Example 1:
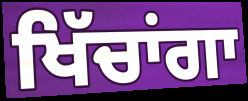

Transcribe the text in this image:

ਖਿੱਚਾਂਗਾ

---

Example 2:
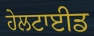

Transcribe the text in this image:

ਹੇਲਟਾਈਡ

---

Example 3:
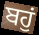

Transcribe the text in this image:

ਬਹੁਂ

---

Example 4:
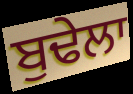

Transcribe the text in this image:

ਬੁਢੇਲਾ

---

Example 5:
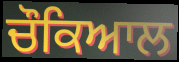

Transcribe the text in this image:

ਚੌਕਿਆਲ